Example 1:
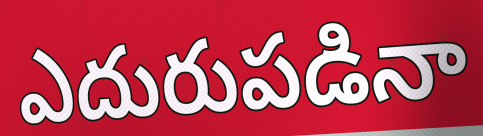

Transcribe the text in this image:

ఎదురుపడినా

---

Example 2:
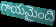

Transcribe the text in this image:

గాయమైంది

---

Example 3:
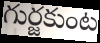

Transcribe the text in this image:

గుర్జకుంట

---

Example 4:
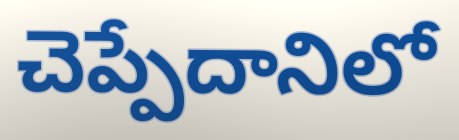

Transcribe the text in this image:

చెప్పేదానిలో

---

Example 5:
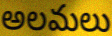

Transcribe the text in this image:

అలమలు